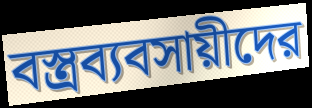
বস্ত্রব্যবসায়ীদের